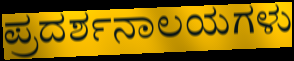
ಪ್ರದರ್ಶನಾಲಯಗಳು